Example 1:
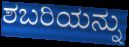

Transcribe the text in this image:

ಶಬರಿಯನ್ನು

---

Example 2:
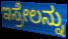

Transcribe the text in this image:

ಇಸ್ರೇಲನ್ನು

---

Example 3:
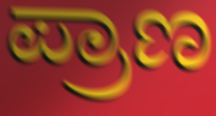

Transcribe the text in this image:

ಪ್ರಾಣ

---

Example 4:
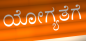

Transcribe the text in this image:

ಯೋಗ್ಯತೆಗೆ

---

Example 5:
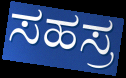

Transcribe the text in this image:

ಸಹಸ್ರ